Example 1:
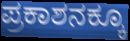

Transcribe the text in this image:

ಪ್ರಕಾಶನಕ್ಕೂ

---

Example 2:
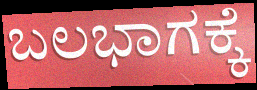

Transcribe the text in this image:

ಬಲಭಾಗಕ್ಕೆ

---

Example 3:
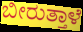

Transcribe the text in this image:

ಬೀರುತ್ತಾಳೆ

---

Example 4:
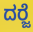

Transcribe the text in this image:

ದರ‍್ಜೆ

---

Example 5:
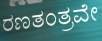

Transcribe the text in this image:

ರಣತಂತ್ರವೇ